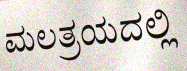
ಮಲತ್ರಯದಲ್ಲಿ